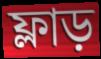
ফ্লাড়